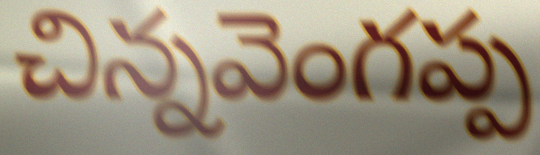
చిన్నవెంగప్ప